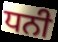
ਧਨੀ